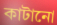
কাটানো